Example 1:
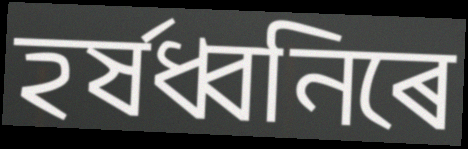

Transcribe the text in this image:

হৰ্ষধ্বনিৰে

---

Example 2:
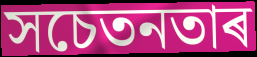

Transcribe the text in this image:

সচেতনতাৰ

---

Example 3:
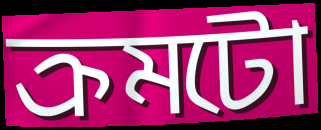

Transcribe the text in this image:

ক্ৰমটো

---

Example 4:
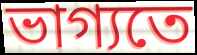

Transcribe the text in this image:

ভাগ্যতে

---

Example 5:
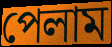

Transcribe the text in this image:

পেলাম